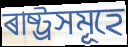
ৰাষ্ট্ৰসমূহে